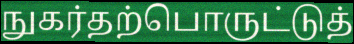
நுகர்தற்பொருட்டுத்